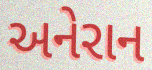
અનેરાન